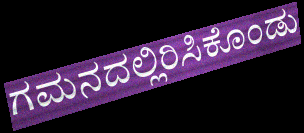
ಗಮನದಲ್ಲಿರಿಸಿಕೊಂಡು